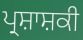
ਪ੍ਰਸ਼ਾਸ਼ਕੀ